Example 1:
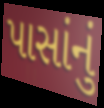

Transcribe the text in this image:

પાસાંનું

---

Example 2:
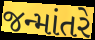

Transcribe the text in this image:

જન્માંતરે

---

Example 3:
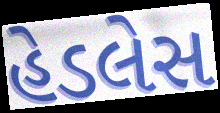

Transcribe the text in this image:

હેડલેસ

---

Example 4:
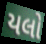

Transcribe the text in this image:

યલો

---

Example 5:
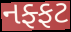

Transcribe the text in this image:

નફ્ફટ